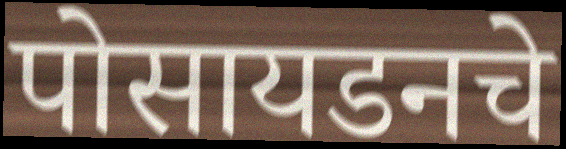
पोसायडनचे